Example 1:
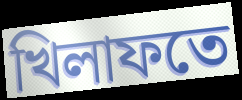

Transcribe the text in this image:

খিলাফতে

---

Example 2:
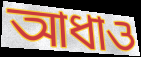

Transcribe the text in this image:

আধাও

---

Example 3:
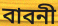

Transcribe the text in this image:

বাবনী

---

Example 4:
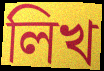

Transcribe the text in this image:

লিখ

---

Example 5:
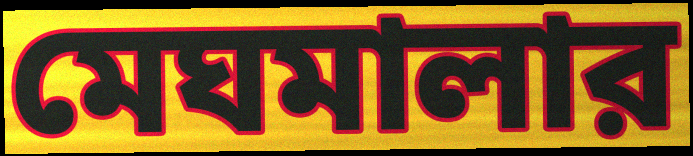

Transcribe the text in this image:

মেঘমালার